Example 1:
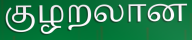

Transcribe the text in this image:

குழறலான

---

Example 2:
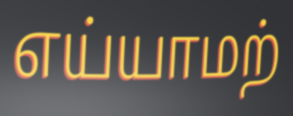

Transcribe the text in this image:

எய்யாமற்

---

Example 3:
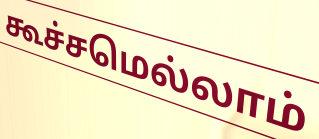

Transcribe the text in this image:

கூச்சமெல்லாம்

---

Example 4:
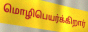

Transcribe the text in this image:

மொழிபெயர்க்கிறார்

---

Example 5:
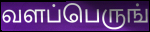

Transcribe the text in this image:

வளப்பெருங்